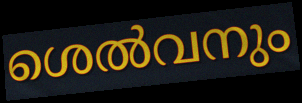
ശെൽവനും